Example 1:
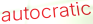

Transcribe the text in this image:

autocratic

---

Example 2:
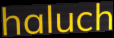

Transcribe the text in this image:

haluch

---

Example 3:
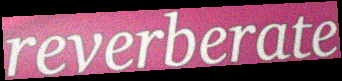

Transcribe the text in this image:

reverberate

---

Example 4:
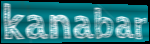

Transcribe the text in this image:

kanabar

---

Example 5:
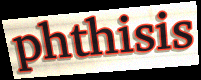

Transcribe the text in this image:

phthisis